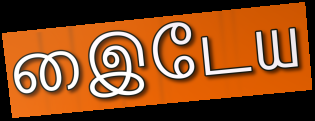
இைடேய